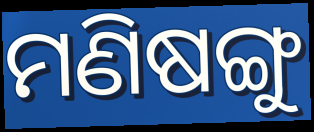
ମଣିଷଙ୍ଗୁ